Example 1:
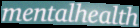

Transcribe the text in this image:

mentalhealth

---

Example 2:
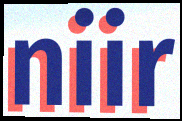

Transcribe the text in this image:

niir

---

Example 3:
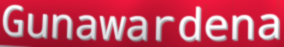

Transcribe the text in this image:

Gunawardena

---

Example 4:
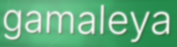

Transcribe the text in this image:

gamaleya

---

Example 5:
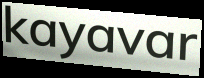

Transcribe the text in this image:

kayavar